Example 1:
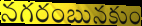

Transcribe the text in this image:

నగరంబునకుం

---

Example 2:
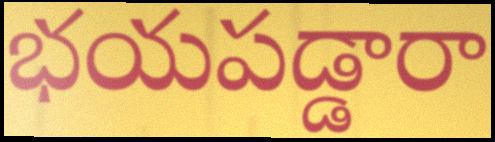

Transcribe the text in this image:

భయపడ్డారా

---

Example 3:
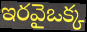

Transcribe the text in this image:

ఇరవైఒక్క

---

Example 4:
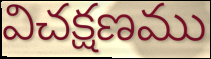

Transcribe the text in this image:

విచక్షణము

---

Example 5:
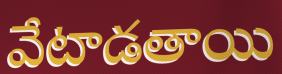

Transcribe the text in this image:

వేటాడతాయి